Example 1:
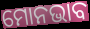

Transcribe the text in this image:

ମୋନଭାବ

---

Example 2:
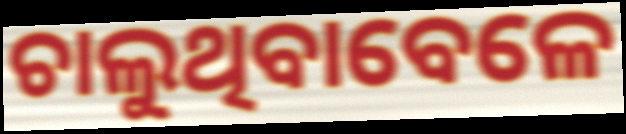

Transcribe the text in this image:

ଚାଲୁଥିବାବେଳେ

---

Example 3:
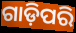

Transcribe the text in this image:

ଗାଡ଼ିପରି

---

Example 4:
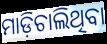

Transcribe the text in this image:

ମାଡ଼ିଚାଲିଥିବା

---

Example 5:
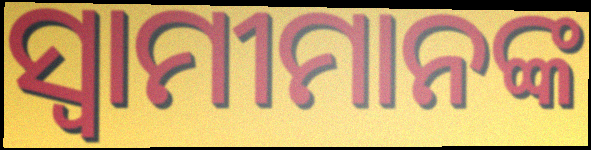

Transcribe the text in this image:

ସ୍ବାମୀମାନଙ୍କ